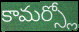
కామర్స్లో